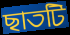
ছাতটি